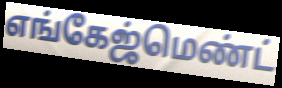
எங்கேஜ்மெண்ட்